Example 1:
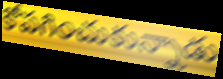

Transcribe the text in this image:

కోపగించుకున్నాడు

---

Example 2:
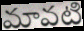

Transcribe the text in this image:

మావటి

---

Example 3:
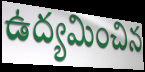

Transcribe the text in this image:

ఉద్యమించిన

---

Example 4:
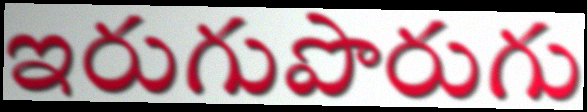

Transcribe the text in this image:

ఇరుగుపొరుగు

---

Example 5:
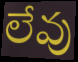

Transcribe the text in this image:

లేవు